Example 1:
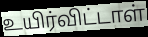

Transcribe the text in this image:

உயிர்விட்டாள்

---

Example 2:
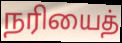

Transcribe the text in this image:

நரியைத்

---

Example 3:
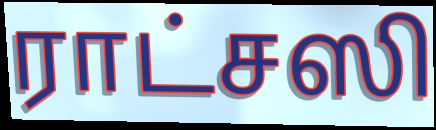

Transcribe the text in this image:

ராட்சஸி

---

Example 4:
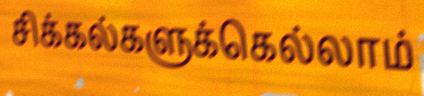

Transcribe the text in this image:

சிக்கல்களுக்கெல்லாம்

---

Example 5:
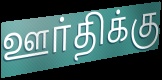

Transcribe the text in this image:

ஊர்திக்கு